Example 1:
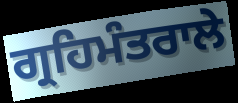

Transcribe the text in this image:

ਗ੍ਰਹਿਮੰਤਰਾਲੇ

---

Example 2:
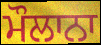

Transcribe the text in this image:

ਮੌਲਾਨਾ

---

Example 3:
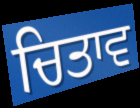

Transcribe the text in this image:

ਚਿਤਾਵ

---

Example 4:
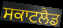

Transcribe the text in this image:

ਸਕਾਟਲੈਡ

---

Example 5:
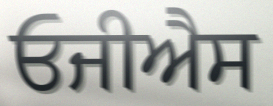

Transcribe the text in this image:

ਓਜੀਐਸ